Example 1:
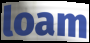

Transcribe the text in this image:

loam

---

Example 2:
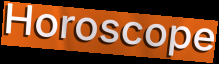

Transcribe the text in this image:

Horoscope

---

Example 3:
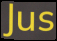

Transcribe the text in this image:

Jus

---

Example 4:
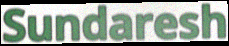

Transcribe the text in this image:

Sundaresh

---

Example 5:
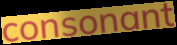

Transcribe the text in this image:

consonant